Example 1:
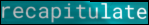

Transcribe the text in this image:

recapitulate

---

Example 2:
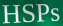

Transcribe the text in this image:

HSPs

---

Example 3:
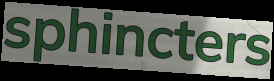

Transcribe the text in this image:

sphincters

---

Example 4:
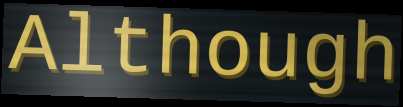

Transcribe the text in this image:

Although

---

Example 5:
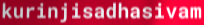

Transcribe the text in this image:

kurinjisadhasivam